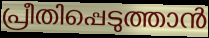
പ്രീതിപ്പെടുത്താൻ